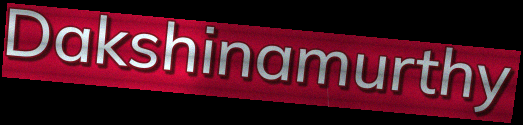
Dakshinamurthy